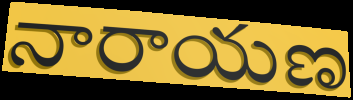
నారాయణ